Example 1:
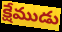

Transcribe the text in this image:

క్షేముడు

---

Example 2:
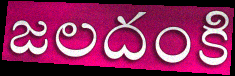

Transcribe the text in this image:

జలదంకి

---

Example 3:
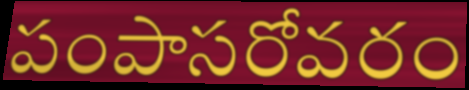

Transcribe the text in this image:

పంపాసరోవరం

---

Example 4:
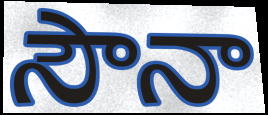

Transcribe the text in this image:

సౌనా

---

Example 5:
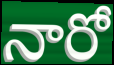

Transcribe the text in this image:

నారో